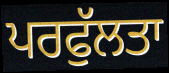
ਪਰਫੁੱਲਤਾ